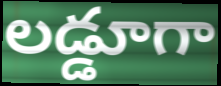
లడ్డూగా